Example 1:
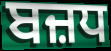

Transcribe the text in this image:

ਬਜ਼ਧ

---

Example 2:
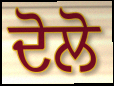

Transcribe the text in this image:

ਦੋਲੋ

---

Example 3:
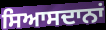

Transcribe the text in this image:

ਸਿਆਸਦਾਨਾਂ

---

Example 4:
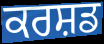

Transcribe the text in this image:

ਕਰਸ਼ਡ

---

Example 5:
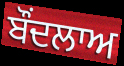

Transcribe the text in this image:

ਬੌਂਦਲਾਅ